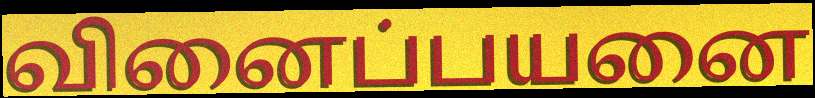
வினைப்பயனை